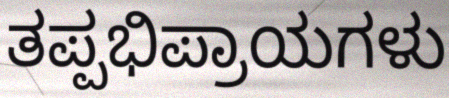
ತಪ್ಪಭಿಪ್ರಾಯಗಳು